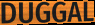
DUGGAL